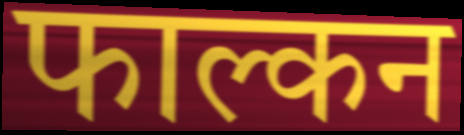
फाल्कन